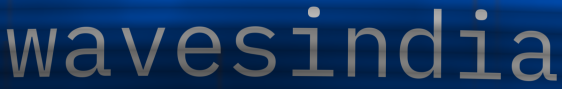
wavesindia